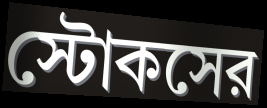
স্টোকসের